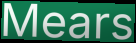
Mears